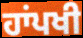
ਹਾਂਪਖੀ